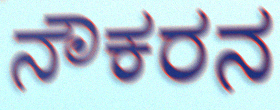
ನೌಕರನ